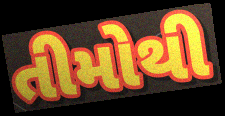
તીમોથી